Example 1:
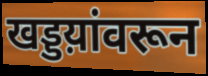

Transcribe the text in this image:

खड्डय़ांवरून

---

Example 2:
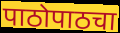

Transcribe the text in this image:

पाठोपाठचा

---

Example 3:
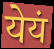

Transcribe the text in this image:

येयं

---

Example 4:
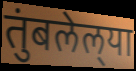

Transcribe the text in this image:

तुंबलेल्या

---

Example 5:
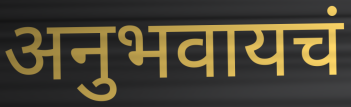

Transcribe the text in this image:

अनुभवायचं